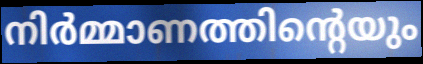
നിർമ്മാണത്തിന്റെയും